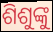
ଶିଶୁଙ୍କୁ